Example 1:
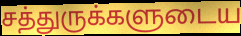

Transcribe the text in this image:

சத்துருக்களுடைய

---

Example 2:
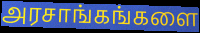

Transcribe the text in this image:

அரசாங்கங்களை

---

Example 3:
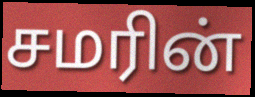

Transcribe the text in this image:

சமரின்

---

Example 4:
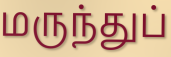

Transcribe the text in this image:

மருந்துப்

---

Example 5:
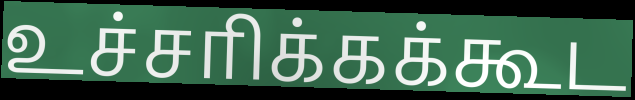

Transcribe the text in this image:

உச்சரிக்கக்கூட